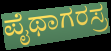
ಪೈಥಾಗರಸ್ರ